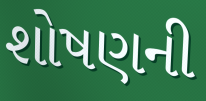
શોષણની